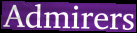
Admirers